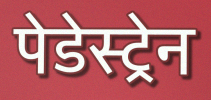
पेडेस्ट्रेन